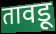
तावडू